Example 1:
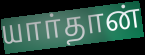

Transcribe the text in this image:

யார்தான்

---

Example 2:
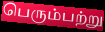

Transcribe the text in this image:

பெரும்பற்று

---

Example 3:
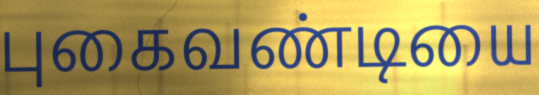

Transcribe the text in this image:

புகைவண்டியை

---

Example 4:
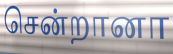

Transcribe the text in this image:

சென்றானா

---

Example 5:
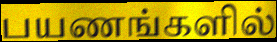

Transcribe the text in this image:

பயணங்களில்